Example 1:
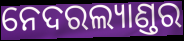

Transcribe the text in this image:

ନେଦରଲ୍ୟାଣ୍ଡର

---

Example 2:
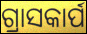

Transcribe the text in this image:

ଗ୍ରାସକାର୍ପ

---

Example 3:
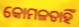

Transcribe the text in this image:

କୋମଳତାହିଁ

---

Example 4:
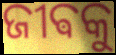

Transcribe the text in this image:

ଜୀଵକୁ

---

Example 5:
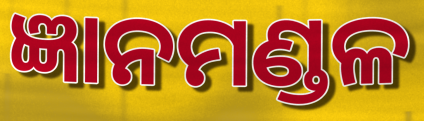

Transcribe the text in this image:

ଜ୍ଞାନମଣ୍ଡଳ